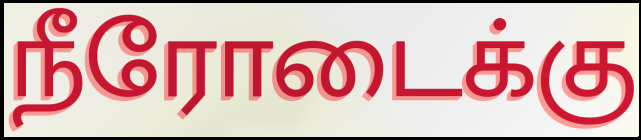
நீரோடைக்கு